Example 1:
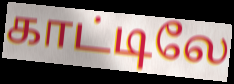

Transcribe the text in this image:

காட்டிலே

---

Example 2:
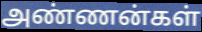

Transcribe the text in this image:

அண்ணன்கள்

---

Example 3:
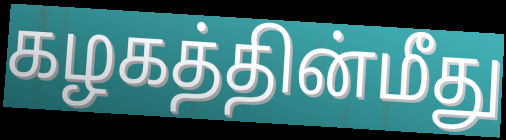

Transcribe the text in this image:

கழகத்தின்மீது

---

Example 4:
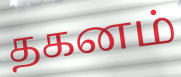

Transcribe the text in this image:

தகனம்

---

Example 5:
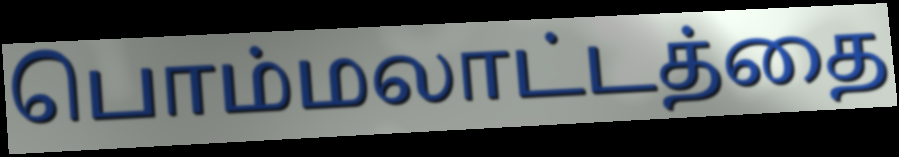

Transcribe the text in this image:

பொம்மலாட்டத்தை